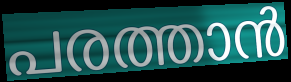
പരത്താൻ